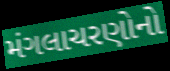
મંગલાચરણોનો